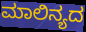
ಮಾಲಿನ್ಯದ